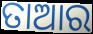
ତାଆର